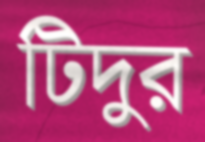
টিদুর